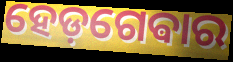
ହେଡ଼ଗେଵାର